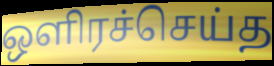
ஒளிரச்செய்த